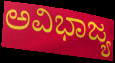
ಅವಿಭಾಜ್ಯ